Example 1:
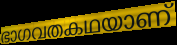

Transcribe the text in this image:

ഭാഗവതകഥയാണ്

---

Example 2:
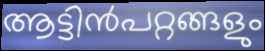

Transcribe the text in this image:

ആട്ടിൻപറ്റങ്ങളും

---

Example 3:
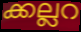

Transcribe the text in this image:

ക്കല്ലറ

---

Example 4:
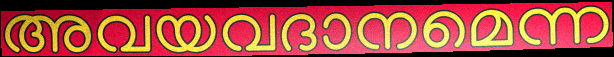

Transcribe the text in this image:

അവയവദാനമെന്ന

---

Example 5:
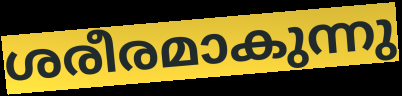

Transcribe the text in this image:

ശരീരമാകുന്നു